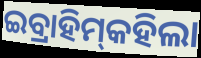
ଇବ୍ରାହିମ୍‌କହିଲା